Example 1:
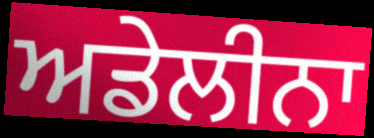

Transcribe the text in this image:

ਅਡੇਲੀਨਾ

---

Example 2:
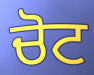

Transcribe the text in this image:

ਚੋਟ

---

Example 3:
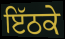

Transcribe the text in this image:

ਇੱਠਕੇ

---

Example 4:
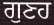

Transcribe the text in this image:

ਗੁਣਹ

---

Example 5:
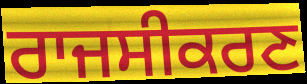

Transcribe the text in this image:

ਰਾਜਸੀਕਰਣ